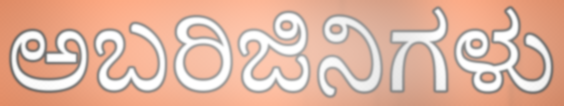
ಅಬರಿಜಿನಿಗಳು